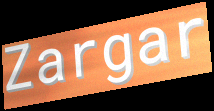
Zargar